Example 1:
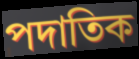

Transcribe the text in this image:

পদাতিক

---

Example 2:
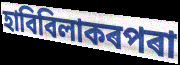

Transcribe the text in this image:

হাবিবিলাকৰপৰা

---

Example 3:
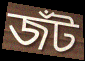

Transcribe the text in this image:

জঁট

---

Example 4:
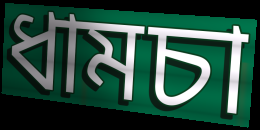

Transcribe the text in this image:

ধামচা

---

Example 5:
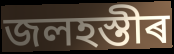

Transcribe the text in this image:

জলহস্তীৰ